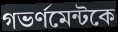
গভর্ণমেন্টকে